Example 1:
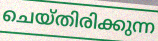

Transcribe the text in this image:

ചെയ്തിരിക്കുന്ന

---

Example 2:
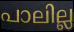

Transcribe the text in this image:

പാലില്ല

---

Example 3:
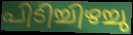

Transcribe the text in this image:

പിടിച്ചിഴച്ചു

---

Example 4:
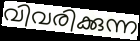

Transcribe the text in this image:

വിവരിക്കുന്ന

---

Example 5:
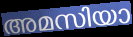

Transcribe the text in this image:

അമസിയാ